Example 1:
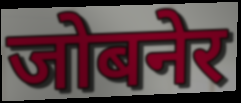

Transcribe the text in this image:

जोबनेर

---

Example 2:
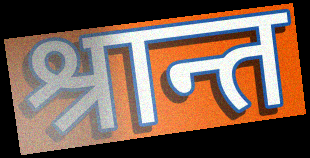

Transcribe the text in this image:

श्रान्त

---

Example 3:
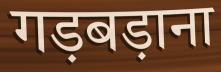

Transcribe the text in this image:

गड़बड़ाना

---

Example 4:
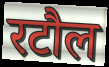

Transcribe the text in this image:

रटौल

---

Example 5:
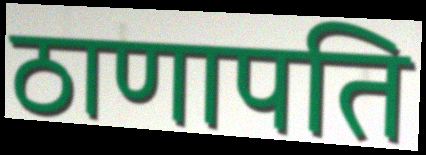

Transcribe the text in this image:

ठाणापति